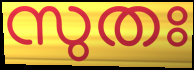
സുതഃ